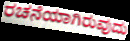
ರಚನೆಯಾಗಿರುವುದು